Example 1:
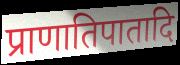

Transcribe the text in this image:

प्राणातिपातादि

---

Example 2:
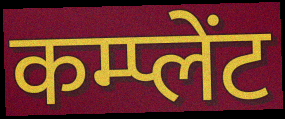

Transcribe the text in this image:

कम्प्लेंट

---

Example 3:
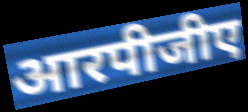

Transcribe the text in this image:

आरपीजीए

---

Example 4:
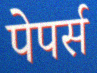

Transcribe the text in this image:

पेपर्स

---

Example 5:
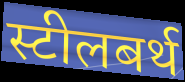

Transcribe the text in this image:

स्टीलबर्थ